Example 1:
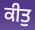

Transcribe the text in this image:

ਕੀਤੁ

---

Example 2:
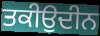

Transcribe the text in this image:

ਤਕੀਉਦੀਨ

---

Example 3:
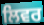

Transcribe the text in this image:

ਲਿਵਰ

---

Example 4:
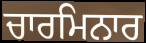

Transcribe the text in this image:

ਚਾਰਮਿਨਾਰ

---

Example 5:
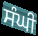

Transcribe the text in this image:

ਸੰਘੀ